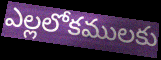
ఎల్లలోకములకు